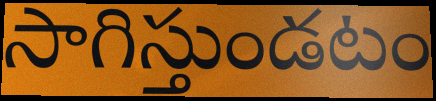
సాగిస్తుండటం